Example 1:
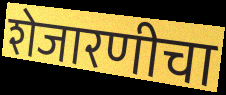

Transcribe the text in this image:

शेजारणीचा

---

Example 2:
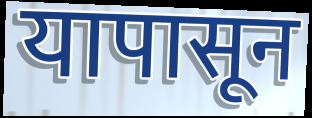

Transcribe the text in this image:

यापासून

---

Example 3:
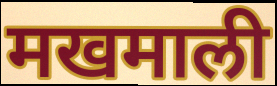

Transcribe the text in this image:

मखमाली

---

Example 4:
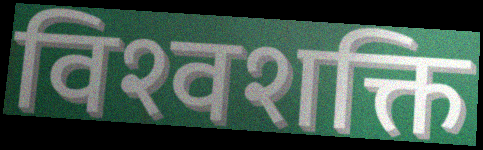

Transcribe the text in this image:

विश्वशक्ति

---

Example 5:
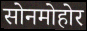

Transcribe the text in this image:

सोनमोहोर